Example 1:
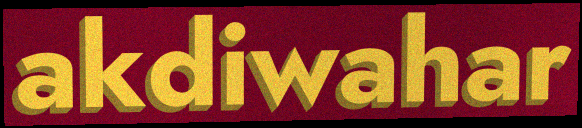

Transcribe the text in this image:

akdiwahar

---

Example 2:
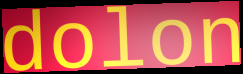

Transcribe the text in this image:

dolon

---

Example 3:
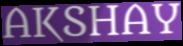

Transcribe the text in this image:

AKSHAY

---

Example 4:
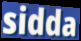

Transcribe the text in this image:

sidda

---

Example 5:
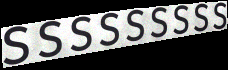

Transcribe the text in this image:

sssssssss